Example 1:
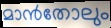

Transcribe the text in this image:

മാൻതോലും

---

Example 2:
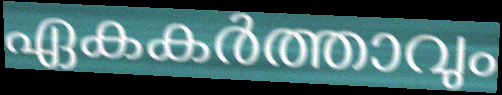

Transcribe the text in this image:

ഏകകർത്താവും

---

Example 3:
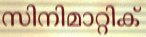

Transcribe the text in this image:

സിനിമാറ്റിക്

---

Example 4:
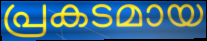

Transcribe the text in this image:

പ്രകടമായ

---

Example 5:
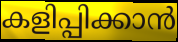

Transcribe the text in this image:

കളിപ്പിക്കാൻ